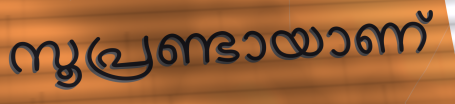
സൂപ്രണ്ടായാണ്